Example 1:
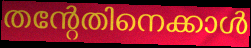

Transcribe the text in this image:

തന്റേതിനെക്കാൾ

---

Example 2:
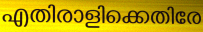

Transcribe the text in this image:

എതിരാളിക്കെതിരേ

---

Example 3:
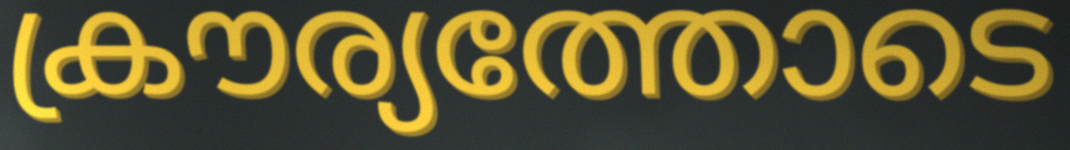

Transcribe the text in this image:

ക്രൗര്യത്തോടെ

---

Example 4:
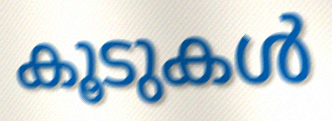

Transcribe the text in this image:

കൂടുകൾ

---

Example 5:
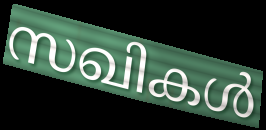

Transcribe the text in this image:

സഖികൾ